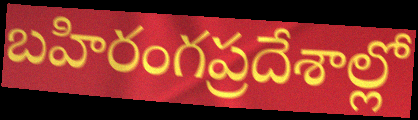
బహిరంగప్రదేశాల్లో